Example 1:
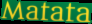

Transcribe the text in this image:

Matata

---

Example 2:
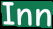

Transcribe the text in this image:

Inn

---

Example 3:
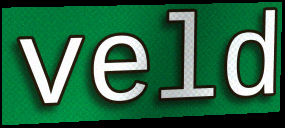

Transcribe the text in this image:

veld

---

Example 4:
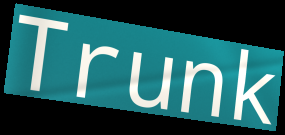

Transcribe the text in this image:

Trunk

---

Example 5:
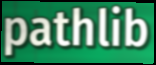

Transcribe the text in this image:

pathlib